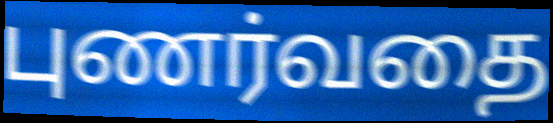
புணர்வதை